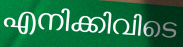
എനിക്കിവിടെ